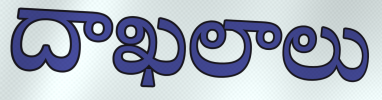
దాఖలాలు